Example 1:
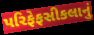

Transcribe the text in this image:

પરિફેફસીકલાનું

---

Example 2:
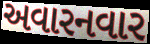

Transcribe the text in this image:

અવારનવાર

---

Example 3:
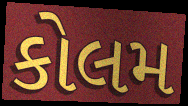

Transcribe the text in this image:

કોલમ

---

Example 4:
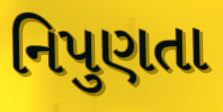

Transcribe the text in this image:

નિપુણતા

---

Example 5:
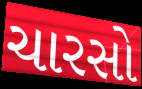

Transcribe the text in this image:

ચારસો